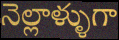
నెల్లాళ్ళుగా